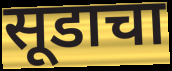
सूडाचा